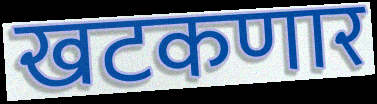
खटकणार